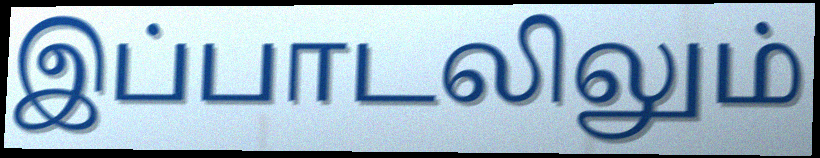
இப்பாடலிலும்